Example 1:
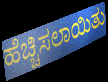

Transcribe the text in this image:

ಹೆಚ್ಚಿಸಲಾಯಿತು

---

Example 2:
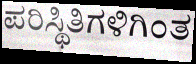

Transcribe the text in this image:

ಪರಿಸ್ಥಿತಿಗಳಿಗಿಂತ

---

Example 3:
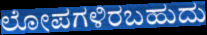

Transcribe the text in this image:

ಲೋಪಗಳಿರಬಹುದು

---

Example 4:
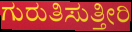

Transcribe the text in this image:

ಗುರುತಿಸುತ್ತೀರಿ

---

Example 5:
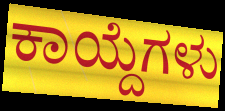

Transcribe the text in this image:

ಕಾಯ್ದೆಗಳು